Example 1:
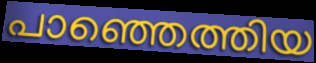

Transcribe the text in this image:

പാഞ്ഞെത്തിയ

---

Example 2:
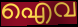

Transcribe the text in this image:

ഐവ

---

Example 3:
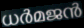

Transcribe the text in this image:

ധർമജൻ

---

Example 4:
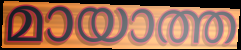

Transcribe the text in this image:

മായാത്ത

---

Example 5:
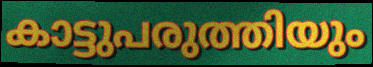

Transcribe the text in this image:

കാട്ടുപരുത്തിയും